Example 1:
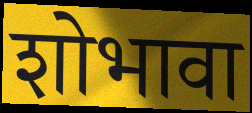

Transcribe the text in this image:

शोभावा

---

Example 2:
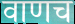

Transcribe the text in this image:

वाणच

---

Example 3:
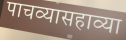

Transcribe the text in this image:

पाचव्यासहाव्या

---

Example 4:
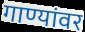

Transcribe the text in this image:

गाण्यांवर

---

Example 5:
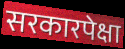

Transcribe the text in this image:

सरकारपेक्षा